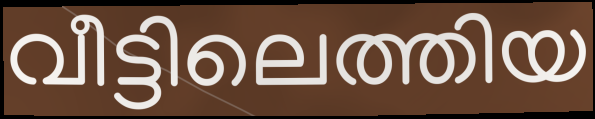
വീട്ടിലെത്തിയ